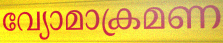
വ്യോമാക്രമണ